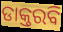
ଡାକ୍ତରବି